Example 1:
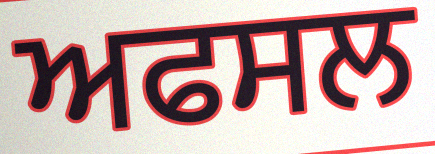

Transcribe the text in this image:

ਅਫਸਲ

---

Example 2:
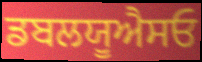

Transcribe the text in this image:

ਡਬਲਯੂਐਸਓ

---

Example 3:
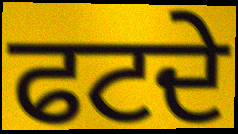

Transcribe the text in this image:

ਫਟਦੇ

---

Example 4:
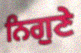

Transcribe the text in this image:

ਨਿਗੁਣੇ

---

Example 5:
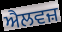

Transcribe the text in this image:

ਐਲਵਜ਼